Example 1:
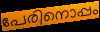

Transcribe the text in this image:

പേരിനൊപ്പം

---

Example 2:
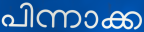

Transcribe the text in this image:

പിന്നാക്ക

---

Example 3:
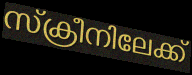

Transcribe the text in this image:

സ്‌ക്രീനിലേക്ക്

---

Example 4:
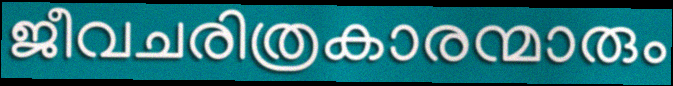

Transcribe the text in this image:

ജീവചരിത്രകാരന്മാരും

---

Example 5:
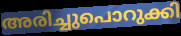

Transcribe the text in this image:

അരിച്ചുപൊറുക്കി